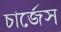
চার্জেস